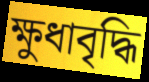
ক্ষুধাবৃদ্ধি